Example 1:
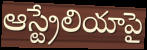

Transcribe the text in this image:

ఆస్ట్రేలియాపై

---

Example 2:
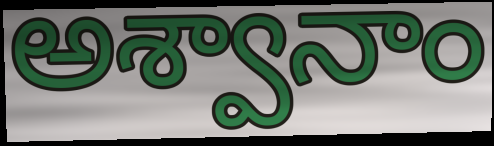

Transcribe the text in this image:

అశ్వానాం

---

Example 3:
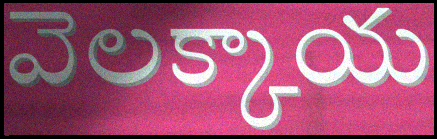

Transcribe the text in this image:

వెలక్కాయ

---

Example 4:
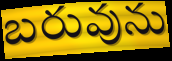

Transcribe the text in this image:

బరువును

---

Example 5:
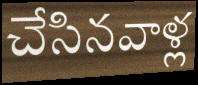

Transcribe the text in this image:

చేసినవాళ్ల